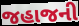
જહાજની